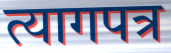
त्यागपत्र